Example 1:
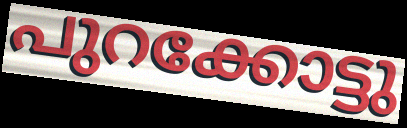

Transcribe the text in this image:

പുറക്കോട്ടു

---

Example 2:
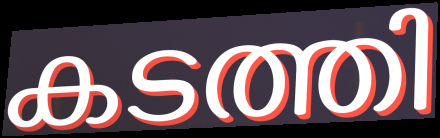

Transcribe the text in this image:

കടത്തി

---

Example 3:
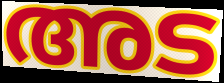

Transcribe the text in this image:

അട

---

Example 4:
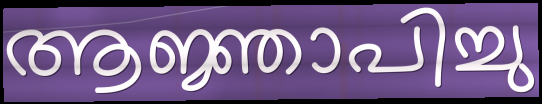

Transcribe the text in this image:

ആജ്ഞാപിച്ചു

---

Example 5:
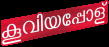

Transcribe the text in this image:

കൂവിയപ്പോള്